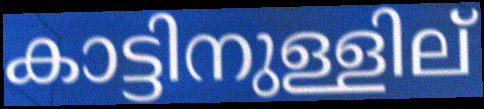
കാട്ടിനുള്ളില്